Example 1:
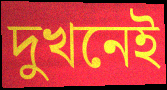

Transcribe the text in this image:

দুখনেই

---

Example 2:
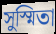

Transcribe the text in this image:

সুস্মিতা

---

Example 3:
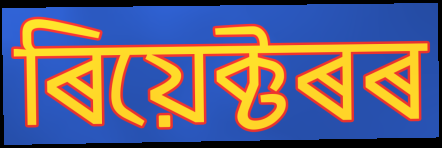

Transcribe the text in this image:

ৰিয়েক্টৰৰ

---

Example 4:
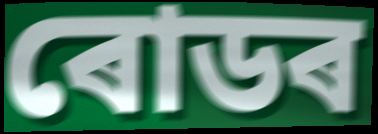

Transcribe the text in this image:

ৰোডৰ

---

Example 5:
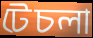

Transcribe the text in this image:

টেচলা